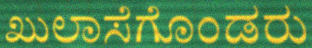
ಖುಲಾಸೆಗೊಂಡರು